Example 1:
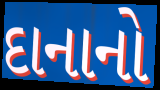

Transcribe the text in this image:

દાનાનો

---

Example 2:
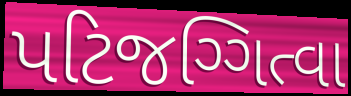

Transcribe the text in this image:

પટિજગ્ગિત્વા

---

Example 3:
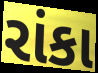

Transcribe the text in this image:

રાંકા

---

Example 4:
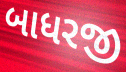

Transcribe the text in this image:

બાધરજી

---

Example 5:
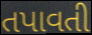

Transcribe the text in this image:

તપાવતી